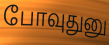
போவுதுனு